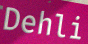
Dehli